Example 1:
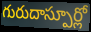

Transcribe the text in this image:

గురుదాస్పూర్లో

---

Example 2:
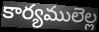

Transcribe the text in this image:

కార్యములెల్ల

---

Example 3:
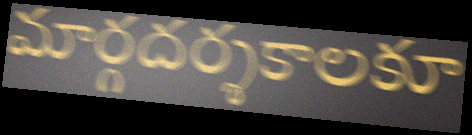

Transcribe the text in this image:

మార్గదర్శకాలకూ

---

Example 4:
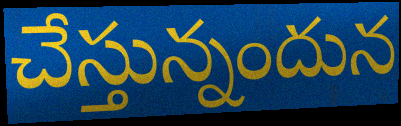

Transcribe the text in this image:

చేస్తున్నందున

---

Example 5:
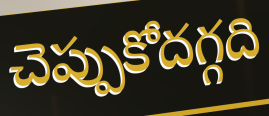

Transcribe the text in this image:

చెప్పుకోదగ్గది